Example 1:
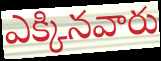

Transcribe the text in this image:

ఎక్కినవారు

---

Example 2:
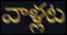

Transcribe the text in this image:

వాళ్లట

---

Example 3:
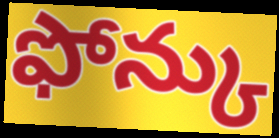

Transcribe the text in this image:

ఫోన్కు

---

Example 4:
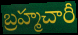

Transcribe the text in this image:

బ్రహ్మచారీ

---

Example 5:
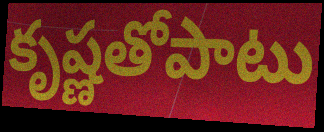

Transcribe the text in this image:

కృష్ణతోపాటు